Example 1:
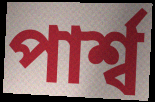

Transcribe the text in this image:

পাৰ্শ্ব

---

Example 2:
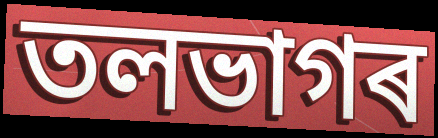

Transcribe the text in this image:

তলভাগৰ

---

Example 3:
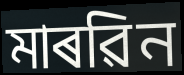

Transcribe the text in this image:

মাৰৱিন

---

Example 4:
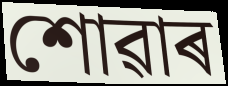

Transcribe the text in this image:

শোৱাৰ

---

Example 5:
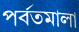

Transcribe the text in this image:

পৰ্বতমালা